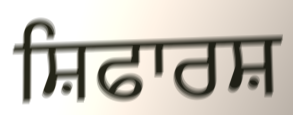
ਸ਼ਿਫਾਰਸ਼